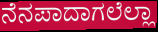
ನೆನಪಾದಾಗಲೆಲ್ಲಾ